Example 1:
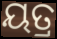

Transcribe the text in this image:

ୟତ୍ର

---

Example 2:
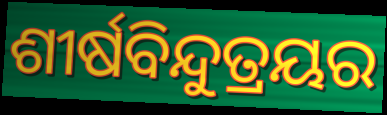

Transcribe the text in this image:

ଶୀର୍ଷବିନ୍ଦୁତ୍ରୟର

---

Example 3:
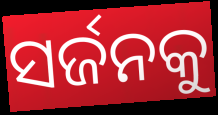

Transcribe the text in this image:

ସର୍ଜନକୁ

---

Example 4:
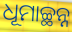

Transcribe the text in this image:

ଧୂମାଚ୍ଛନ୍ନ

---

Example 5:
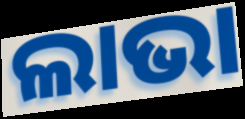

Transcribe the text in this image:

ଲାଭା